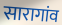
सारागांव